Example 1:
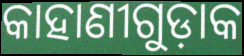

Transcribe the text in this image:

କାହାଣୀଗୁଡ଼ାକ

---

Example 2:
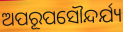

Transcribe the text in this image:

ଅପରୂପସୌନ୍ଦର୍ଯ୍ୟ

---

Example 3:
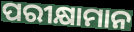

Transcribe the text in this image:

ପରୀକ୍ଷାମାନ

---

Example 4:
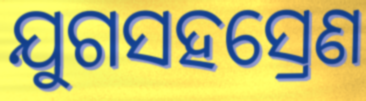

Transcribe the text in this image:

ଯୁଗସହସ୍ରେଣ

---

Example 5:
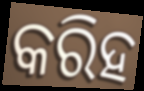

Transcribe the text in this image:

କରିହ